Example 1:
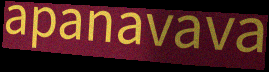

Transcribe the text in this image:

apanavava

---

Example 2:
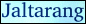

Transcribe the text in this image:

Jaltarang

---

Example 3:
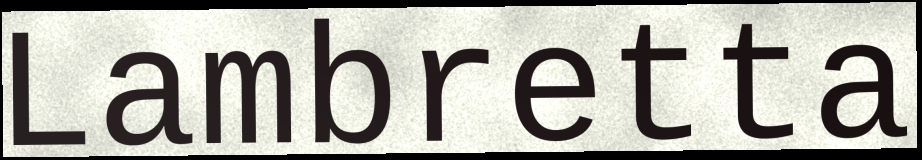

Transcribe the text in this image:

Lambretta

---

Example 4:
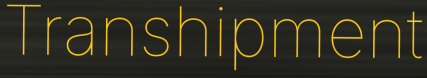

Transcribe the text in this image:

Transhipment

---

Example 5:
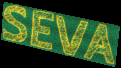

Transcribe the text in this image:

SEVA